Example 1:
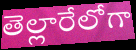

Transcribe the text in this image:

తెల్లారేలోగా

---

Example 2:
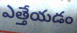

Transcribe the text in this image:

ఎత్తేయడం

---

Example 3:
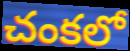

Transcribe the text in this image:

చంకలో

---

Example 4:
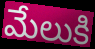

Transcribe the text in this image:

మేలుకి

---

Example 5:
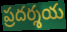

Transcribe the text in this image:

ప్రదర్శయ